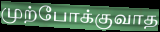
முற்போக்குவாத